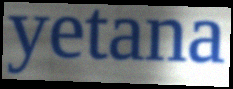
yetana